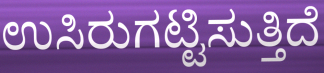
ಉಸಿರುಗಟ್ಟಿಸುತ್ತಿದೆ